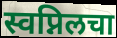
स्वप्निलचा